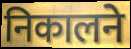
निकालने